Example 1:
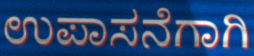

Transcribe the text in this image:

ಉಪಾಸನೆಗಾಗಿ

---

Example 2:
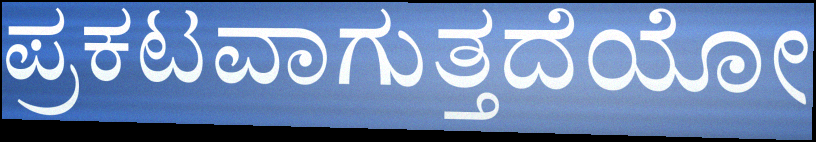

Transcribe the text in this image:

ಪ್ರಕಟವಾಗುತ್ತದೆಯೋ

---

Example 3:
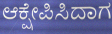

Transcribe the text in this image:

ಆಕ್ಷೇಪಿಸಿದಾಗ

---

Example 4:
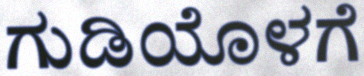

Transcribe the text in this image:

ಗುಡಿಯೊಳಗೆ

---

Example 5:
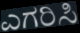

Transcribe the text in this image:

ಎಗರಿಸಿ